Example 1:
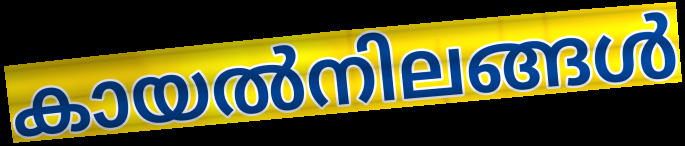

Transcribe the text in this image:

കായൽനിലങ്ങൾ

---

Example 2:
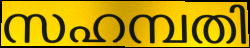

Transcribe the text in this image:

സഹമ്പതി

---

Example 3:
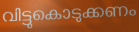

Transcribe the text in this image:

വിട്ടുകൊടുക്കണം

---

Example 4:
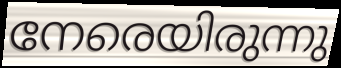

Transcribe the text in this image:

നേരെയിരുന്നു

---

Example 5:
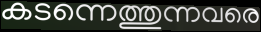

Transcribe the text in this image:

കടന്നെത്തുന്നവരെ